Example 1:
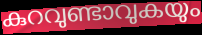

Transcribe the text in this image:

കുറവുണ്ടാവുകയും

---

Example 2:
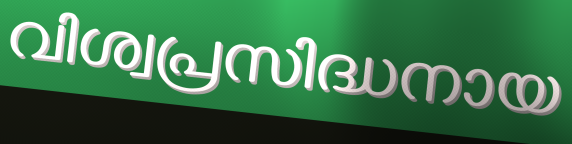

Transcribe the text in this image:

വിശ്വപ്രസിദ്ധനായ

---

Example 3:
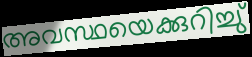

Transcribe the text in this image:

അവസ്ഥയെക്കുറിച്ചു്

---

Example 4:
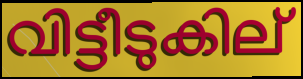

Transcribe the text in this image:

വിട്ടീടുകില്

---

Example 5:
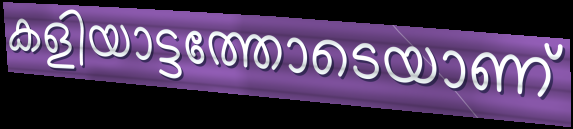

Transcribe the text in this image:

കളിയാട്ടത്തോടെയാണ്